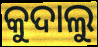
କୁଦାଲୁ